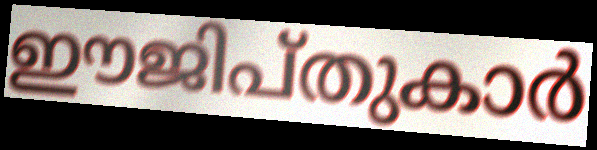
ഈജിപ്തുകാർ